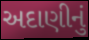
અદાણીનું